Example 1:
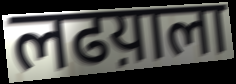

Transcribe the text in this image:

लढय़ाला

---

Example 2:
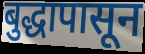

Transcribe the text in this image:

बुद्धापासून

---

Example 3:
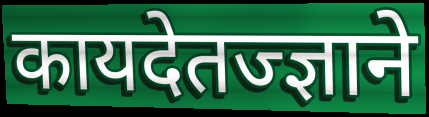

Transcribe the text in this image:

कायदेतज्ज्ञाने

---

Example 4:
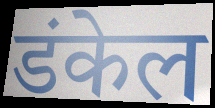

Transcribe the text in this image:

डंकेल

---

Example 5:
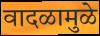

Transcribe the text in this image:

वादळामुळे